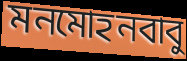
মনমোহনবাবু